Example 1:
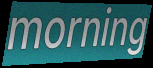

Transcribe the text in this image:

morning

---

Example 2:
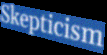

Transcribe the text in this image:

Skepticism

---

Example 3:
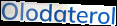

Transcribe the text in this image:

Olodaterol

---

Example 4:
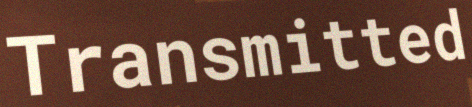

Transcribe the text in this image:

Transmitted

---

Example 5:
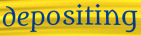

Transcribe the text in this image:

depositing